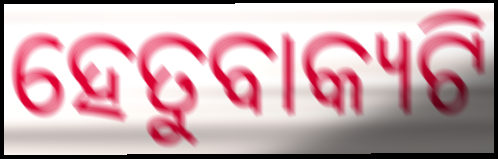
ହେତୁବାକ୍ୟଟି